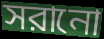
সরানো